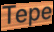
Tepe